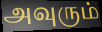
அவுரும்